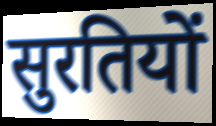
सुरतियों